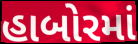
હાબોરમાં